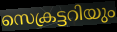
സെക്രട്ടറിയും